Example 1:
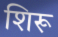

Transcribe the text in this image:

शिरू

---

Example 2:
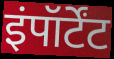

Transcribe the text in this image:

इंपॉर्टेंट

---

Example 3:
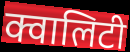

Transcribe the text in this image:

क्वालिटी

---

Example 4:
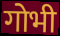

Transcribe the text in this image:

गोभी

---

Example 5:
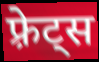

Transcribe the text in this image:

फ़्रेट्स